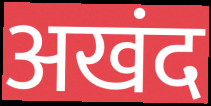
अखंद